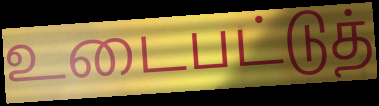
உடைபட்டுத்